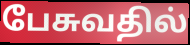
பேசுவதில்